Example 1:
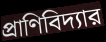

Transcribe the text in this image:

প্রাণিবিদ্যার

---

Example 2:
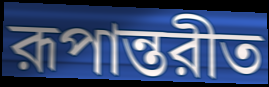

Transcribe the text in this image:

রূপান্তরীত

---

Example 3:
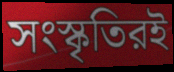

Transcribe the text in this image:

সংস্কৃতিরই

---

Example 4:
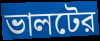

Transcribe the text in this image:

ভালটের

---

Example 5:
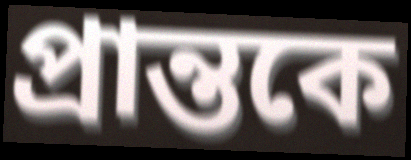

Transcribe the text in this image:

প্রান্তকে